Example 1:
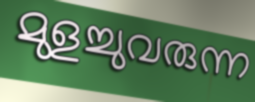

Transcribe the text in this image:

മുളച്ചുവരുന്ന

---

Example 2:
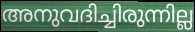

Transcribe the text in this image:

അനുവദിച്ചിരുന്നില്ല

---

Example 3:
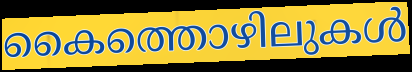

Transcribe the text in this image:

കൈത്തൊഴിലുകൾ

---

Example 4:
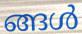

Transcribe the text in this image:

ങ്ങൾ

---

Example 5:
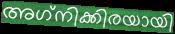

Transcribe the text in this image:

അഗ്‌നിക്കിരയായി